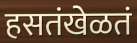
हसतंखेळतं